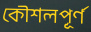
কৌশলপূৰ্ণ